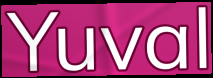
Yuval